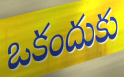
ఒకందుకు